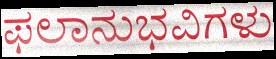
ಫಲಾನುಭವಿಗಳು